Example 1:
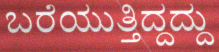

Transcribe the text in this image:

ಬರೆಯುತ್ತಿದ್ದದ್ದು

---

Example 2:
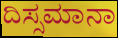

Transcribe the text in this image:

ದಿಸ್ಸಮಾನಾ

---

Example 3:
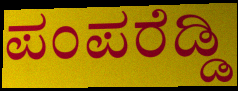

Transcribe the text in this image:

ಪಂಪರೆಡ್ಡಿ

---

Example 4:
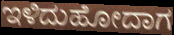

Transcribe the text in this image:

ಇಳಿದುಹೋದಾಗ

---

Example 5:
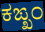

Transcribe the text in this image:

ಕಙ್ಖಂ